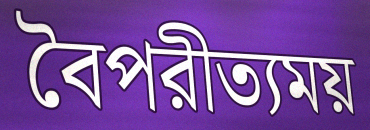
বৈপরীত্যময়